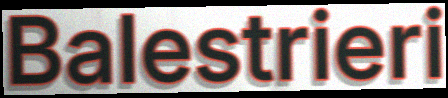
Balestrieri